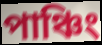
পাঞ্চিং